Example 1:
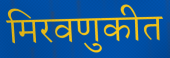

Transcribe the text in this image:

मिरवणुकीत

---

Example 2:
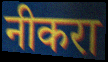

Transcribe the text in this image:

नीकरा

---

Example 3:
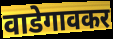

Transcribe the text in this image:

वाडेगावकर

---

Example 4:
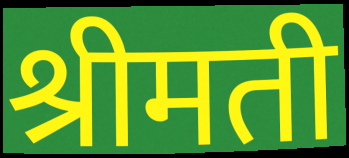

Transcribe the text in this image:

श्रीमती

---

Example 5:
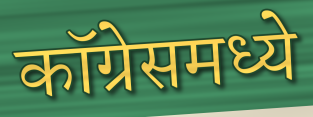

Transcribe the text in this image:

कॉग्रेसमध्ये